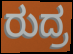
ರುದ್ರ